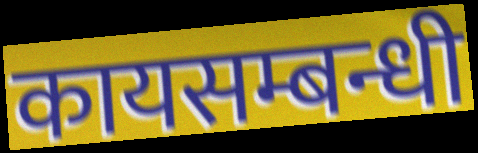
कायसम्बन्धी